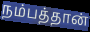
நம்பத்தான்